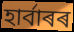
হাৰ্বাৰৰ